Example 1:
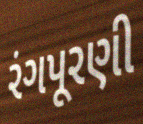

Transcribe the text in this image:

રંગપૂરણી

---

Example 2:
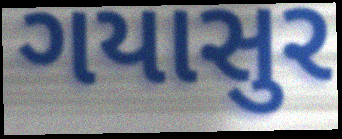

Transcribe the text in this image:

ગયાસુર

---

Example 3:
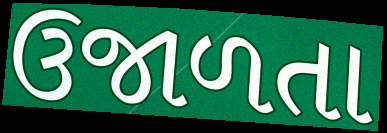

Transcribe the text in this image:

ઉજાળતા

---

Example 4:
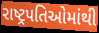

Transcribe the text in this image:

રાષ્ટ્રપતિઓમાંથી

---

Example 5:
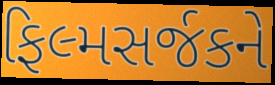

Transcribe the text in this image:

ફિલ્મસર્જકને